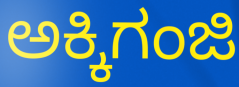
ಅಕ್ಕಿಗಂಜಿ